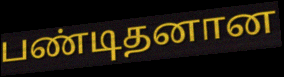
பண்டிதனான